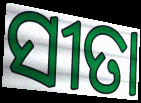
ସୀତା